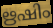
ഋഷിം